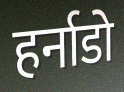
हर्नाडो